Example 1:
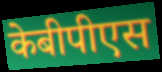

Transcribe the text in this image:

केबीपीएस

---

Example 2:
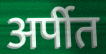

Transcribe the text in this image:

अर्पीत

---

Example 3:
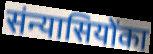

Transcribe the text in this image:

संन्यासियोंका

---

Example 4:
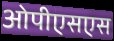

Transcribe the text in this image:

ओपीएसएस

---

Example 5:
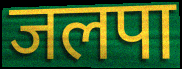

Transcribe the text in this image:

जलपा